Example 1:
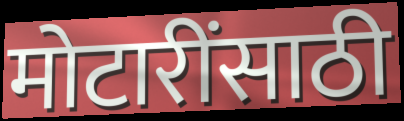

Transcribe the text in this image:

मोटारींसाठी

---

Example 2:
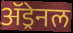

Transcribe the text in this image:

ॲड्रेनल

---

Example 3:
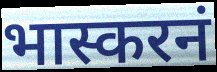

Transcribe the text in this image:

भास्करनं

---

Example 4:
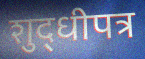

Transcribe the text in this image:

शुद्धीपत्र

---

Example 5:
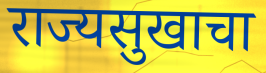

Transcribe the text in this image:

राज्यसुखाचा